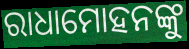
ରାଧାମୋହନଙ୍କୁ